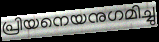
പ്രിയനെയനുഗമിച്ചു